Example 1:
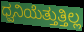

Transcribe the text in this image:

ಧ್ವನಿಯೆತ್ತುತ್ತಿಲ್ಲ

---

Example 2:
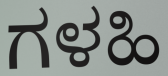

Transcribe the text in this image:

ಗಳಹಿ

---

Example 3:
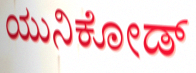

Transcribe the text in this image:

ಯುನಿಕೋಡ್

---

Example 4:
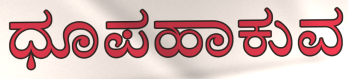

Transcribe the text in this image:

ಧೂಪಹಾಕುವ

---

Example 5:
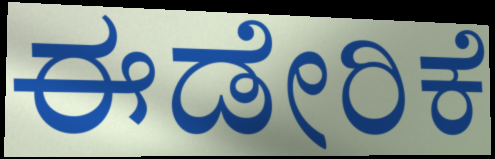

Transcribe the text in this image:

ಈಡೇರಿಕೆ